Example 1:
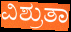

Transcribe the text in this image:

ವಿಶ್ರುತಾ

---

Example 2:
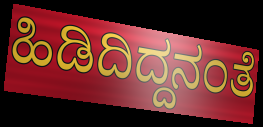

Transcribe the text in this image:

ಹಿಡಿದಿದ್ದನಂತೆ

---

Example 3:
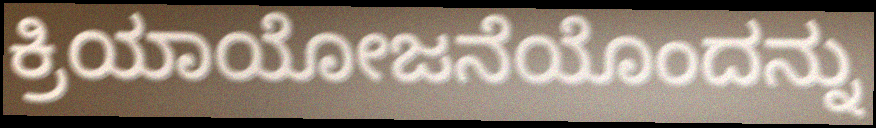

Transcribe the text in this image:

ಕ್ರಿಯಾಯೋಜನೆಯೊಂದನ್ನು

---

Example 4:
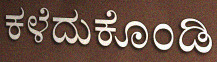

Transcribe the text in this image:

ಕಳೆದುಕೊಂಡಿ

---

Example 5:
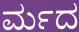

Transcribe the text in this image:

ರ್ಮದ